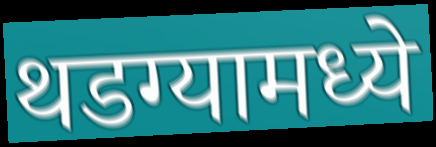
थडग्यामध्ये